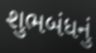
શુભબંધનું